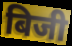
बिजी